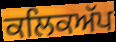
ਕਲਿਕਅੱਪ